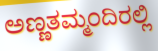
ಅಣ್ಣತಮ್ಮಂದಿರಲ್ಲಿ